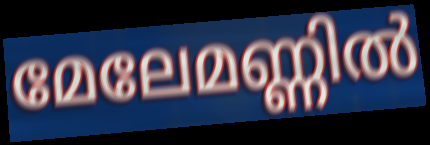
മേലേമണ്ണിൽ